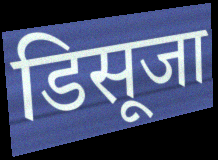
डिसूजा